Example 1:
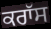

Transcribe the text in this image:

ਕਰਾੱਸ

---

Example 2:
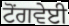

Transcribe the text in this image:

ਟੋਂਗਵੇਈ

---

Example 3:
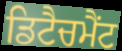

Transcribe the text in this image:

ਡਿਟੈਚਮੈਂਟ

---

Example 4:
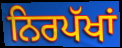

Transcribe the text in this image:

ਨਿਰਪੱਖਾਂ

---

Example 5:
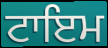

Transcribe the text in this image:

ਟਾਇਮ